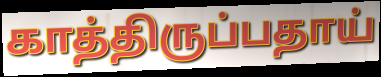
காத்திருப்பதாய்